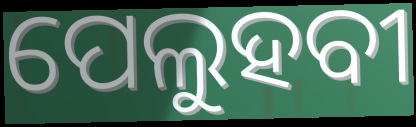
ପେଲୁହବୀ